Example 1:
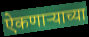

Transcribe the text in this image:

ऐकणाऱ्याच्या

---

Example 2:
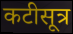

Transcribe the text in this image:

कटीसूत्र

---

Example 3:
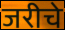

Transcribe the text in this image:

जरीचे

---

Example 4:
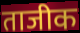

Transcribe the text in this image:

ताजीक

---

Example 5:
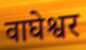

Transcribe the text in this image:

वाघेश्वर